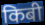
किबी